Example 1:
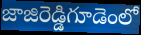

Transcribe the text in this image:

జాజిరెడ్డిగూడెంలో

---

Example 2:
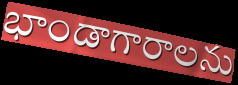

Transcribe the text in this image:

భాండాగారాలను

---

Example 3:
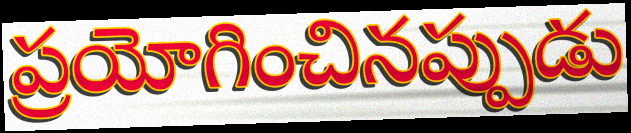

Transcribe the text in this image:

ప్రయోగించినప్పుడు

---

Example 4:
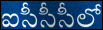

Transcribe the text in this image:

ఐసీసీసీలో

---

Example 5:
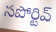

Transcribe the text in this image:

సపోర్టివ్